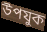
উপযুক